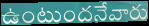
ఉంటుందనేవారు